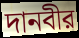
দানবীর